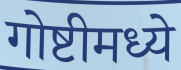
गोष्टीमध्ये